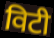
विटी